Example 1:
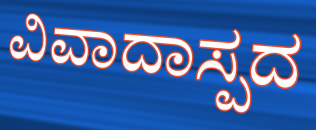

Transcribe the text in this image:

ವಿವಾದಾಸ್ಪದ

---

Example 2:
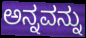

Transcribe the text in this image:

ಅನ್ನವನ್ನು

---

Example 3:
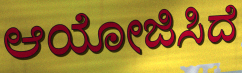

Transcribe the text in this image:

ಆಯೋಜಿಸಿದೆ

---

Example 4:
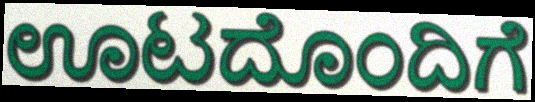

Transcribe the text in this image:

ಊಟದೊಂದಿಗೆ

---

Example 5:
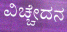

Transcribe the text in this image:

ವಿಚ್ಚೇದನ